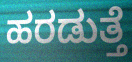
ಹರಡುತ್ತೆ